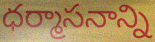
ధర్మాసనాన్ని